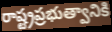
రాష్ట్రప్రభుత్వానికి